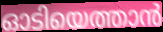
ഓടിയെത്താൻ